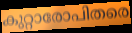
കുറ്റാരോപിതരെ